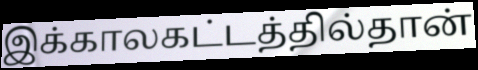
இக்காலகட்டத்தில்தான்